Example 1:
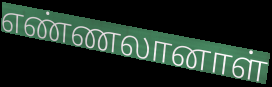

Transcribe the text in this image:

எண்ணலானாள்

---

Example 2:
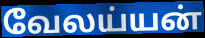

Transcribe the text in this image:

வேலய்யன்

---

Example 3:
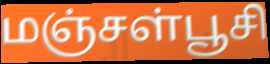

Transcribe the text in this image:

மஞ்சள்பூசி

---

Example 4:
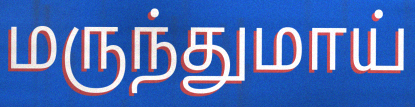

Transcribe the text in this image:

மருந்துமாய்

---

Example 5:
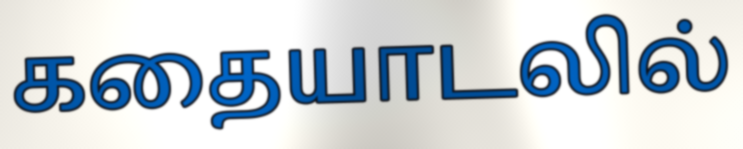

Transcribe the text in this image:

கதையாடலில்